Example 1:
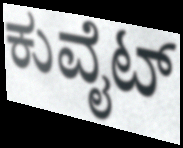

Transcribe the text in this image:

ಕುವೈಟ್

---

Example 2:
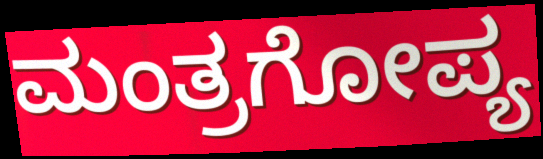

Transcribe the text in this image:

ಮಂತ್ರಗೋಪ್ಯ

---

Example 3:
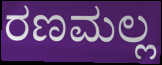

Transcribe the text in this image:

ರಣಮಲ್ಲ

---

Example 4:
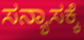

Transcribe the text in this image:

ಸನ್ಯಾಸಕ್ಕೆ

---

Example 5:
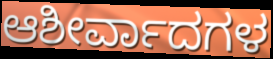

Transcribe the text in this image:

ಆಶೀರ್ವಾದಗಳ